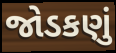
જોડકણું